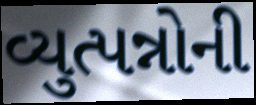
વ્યુત્પન્નોની